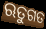
ଋତୁଗତ